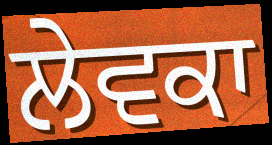
ਲੇਵਕਾ